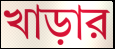
খাড়ার